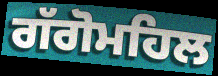
ਗੱਗੋਮਹਿਲ